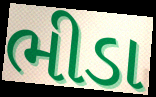
ભીડા